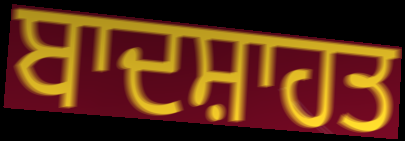
ਬਾਦਸ਼ਾਹਤ